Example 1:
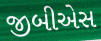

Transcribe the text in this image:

જીબીએસ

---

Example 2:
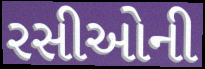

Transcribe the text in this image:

રસીઓની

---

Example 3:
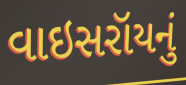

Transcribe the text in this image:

વાઇસરૉયનું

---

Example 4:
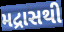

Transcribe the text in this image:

મદ્રાસથી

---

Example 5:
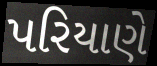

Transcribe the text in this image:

પરિયાણે